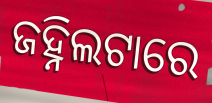
ଜହ୍ନିଲଟାରେ